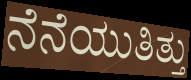
ನೆನೆಯುತಿತ್ತು